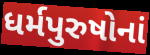
ધર્મપુરુષોનાં